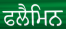
ਫਲੈਮਿਨ